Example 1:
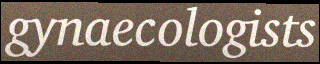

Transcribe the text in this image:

gynaecologists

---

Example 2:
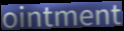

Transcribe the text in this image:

ointment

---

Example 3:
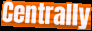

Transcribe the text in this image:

Centrally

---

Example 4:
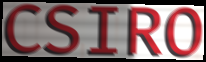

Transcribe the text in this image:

CSIRO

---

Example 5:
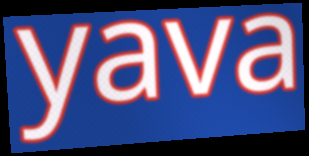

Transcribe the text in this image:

yava